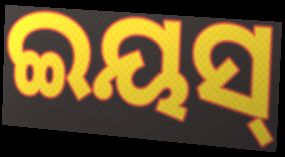
ଇୟସ୍